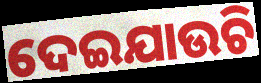
ଦେଇଯାଉଚି